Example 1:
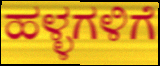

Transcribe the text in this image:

ಹಳ್ಳಗಳಿಗೆ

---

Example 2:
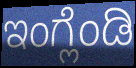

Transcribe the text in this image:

ಇಂಗ್ಲೆಂಡಿ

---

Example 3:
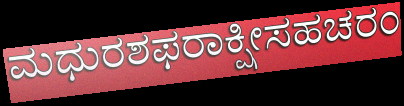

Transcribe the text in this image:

ಮಧುರಶಫರಾಕ್ಷೀಸಹಚರಂ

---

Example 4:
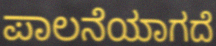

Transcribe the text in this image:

ಪಾಲನೆಯಾಗದೆ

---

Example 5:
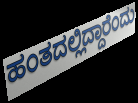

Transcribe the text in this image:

ಹಂತದಲ್ಲಿದ್ದಾರೆಂದು